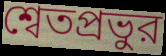
শ্বেতপ্রভুর